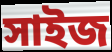
সাইজ